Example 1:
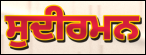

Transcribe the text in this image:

ਸੁਦੀਰਮਨ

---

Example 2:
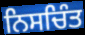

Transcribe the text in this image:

ਨਿਸਚਿੰਤ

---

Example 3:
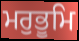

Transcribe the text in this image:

ਮਰੁਭੂਮਿ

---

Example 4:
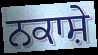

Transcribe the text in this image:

ਨਕਾਸ਼ੇ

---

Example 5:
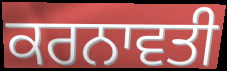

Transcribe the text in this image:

ਕਰਨਾਵਤੀ